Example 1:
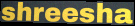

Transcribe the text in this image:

shreesha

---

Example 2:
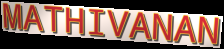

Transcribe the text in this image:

MATHIVANAN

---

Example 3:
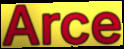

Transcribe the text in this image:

Arce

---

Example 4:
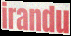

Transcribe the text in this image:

irandu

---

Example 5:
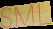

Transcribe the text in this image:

SML